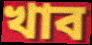
খাব